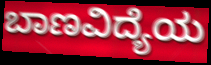
ಬಾಣವಿದ್ಯೆಯ